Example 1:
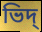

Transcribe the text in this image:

ভিদ্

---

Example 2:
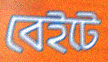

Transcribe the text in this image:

বেইটে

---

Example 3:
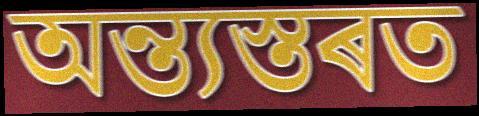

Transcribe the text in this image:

অন্ত্যস্তৰত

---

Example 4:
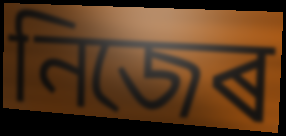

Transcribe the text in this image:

নিজেৰ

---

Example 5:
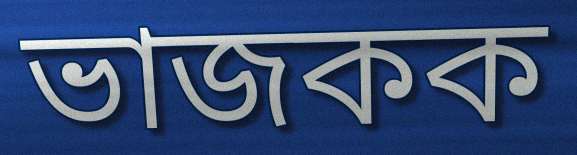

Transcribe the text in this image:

ভাজকক